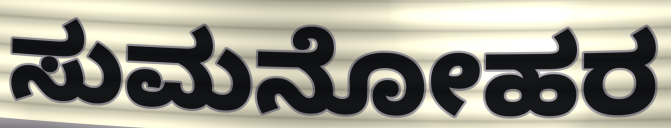
ಸುಮನೋಹರ